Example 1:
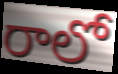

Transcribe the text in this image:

రాలో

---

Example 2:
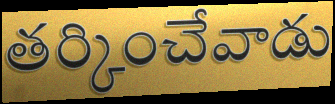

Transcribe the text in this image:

తర్కించేవాడు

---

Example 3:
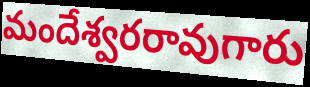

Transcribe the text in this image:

మందేశ్వరరావుగారు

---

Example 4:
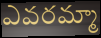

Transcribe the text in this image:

ఎవరమ్మా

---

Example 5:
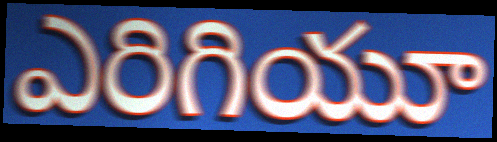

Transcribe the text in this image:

ఎరిగియూ